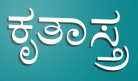
ಕೃತಾಸ್ತ್ರ